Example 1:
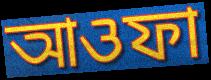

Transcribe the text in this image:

আওফা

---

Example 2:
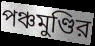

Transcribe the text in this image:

পঞ্চমুণ্ডির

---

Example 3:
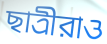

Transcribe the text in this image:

ছাত্রীরাও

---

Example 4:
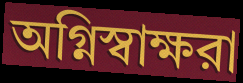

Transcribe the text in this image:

অগ্নিস্বাক্ষরা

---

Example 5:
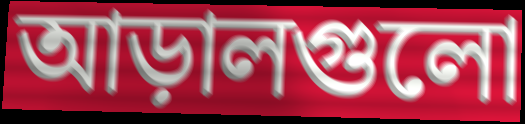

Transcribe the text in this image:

আড়ালগুলো